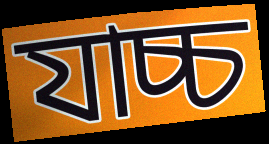
যাচ্চ